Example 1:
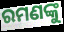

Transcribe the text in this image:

ରମଣଙ୍କୁ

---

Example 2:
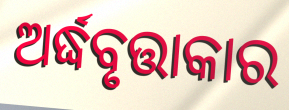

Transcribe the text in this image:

ଅର୍ଦ୍ଧବୃତ୍ତାକାର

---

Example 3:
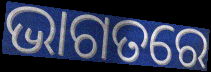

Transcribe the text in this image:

ଭାଗତରେ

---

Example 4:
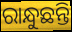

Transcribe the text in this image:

ରାନ୍ଧୁଛନ୍ତି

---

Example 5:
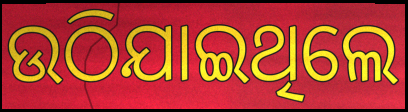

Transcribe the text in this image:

ଉଠିଯାଇଥିଲେ